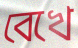
বেখে